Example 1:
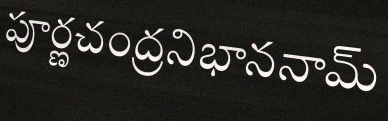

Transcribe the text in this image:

పూర్ణచంద్రనిభాననామ్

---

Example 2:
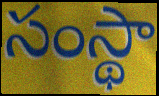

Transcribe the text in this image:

సంస్థా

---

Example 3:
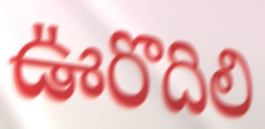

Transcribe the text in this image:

ఊరొదిలి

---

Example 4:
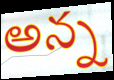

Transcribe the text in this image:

అన్న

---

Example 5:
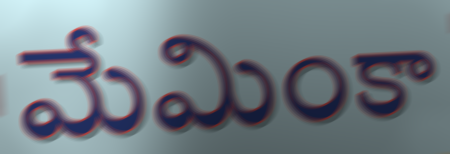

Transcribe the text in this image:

మేమింకా